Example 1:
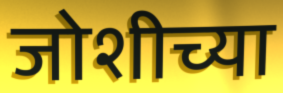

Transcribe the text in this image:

जोशीच्या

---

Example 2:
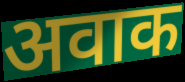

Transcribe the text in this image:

अवाक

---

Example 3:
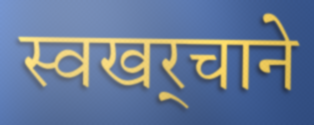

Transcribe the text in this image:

स्वखर्चाने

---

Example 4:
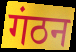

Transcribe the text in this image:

गंठन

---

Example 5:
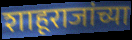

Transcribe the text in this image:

शाहूराजांच्या